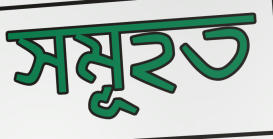
সমূহত